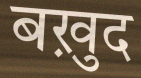
बख़ुद